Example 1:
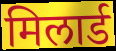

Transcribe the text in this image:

मिलार्ड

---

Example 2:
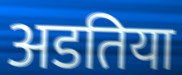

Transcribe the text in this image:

अडतिया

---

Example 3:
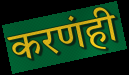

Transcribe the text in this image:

करणंही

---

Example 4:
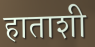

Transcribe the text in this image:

हाताशी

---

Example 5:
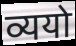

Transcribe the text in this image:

व्ययो